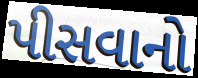
પીસવાનો